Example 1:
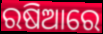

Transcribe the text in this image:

ରଷିଆରେ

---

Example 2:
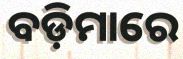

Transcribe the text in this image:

ବଡ଼ିମାରେ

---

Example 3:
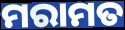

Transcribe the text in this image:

ମରାମତ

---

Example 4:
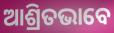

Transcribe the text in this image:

ଆଶ୍ରିତଭାବେ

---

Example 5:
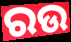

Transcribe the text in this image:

ରଉ